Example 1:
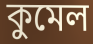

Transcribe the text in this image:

কুমেল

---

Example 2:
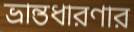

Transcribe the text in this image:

ভ্রান্তধারণার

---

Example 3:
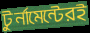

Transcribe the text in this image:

টুর্নামেন্টেরই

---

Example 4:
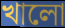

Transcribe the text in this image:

খালো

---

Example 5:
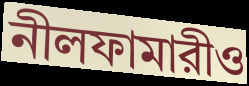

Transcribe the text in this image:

নীলফামারীও